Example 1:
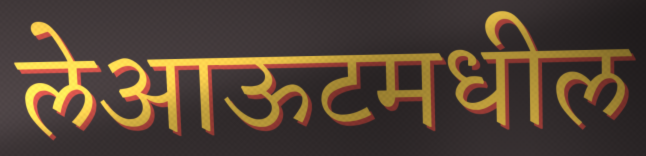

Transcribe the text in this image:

लेआऊटमधील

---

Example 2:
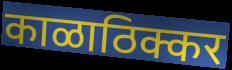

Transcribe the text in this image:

काळाठिक्कर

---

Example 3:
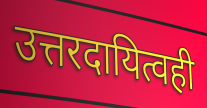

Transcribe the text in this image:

उत्तरदायित्वही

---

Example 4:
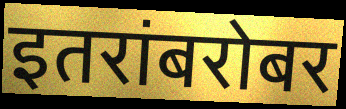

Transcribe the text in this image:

इतरांबरोबर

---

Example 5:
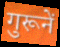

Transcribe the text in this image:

गुरूनें